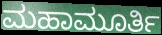
ಮಹಾಮೂರ್ತಿ